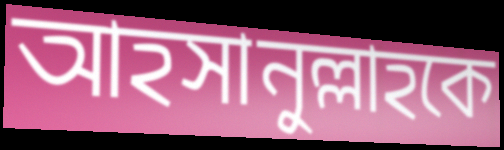
আহসানুল্লাহকে